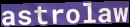
astrolaw